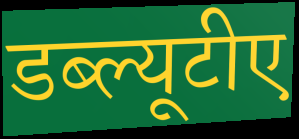
डब्ल्यूटीए